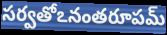
సర్వతోఽనంతరూపమ్